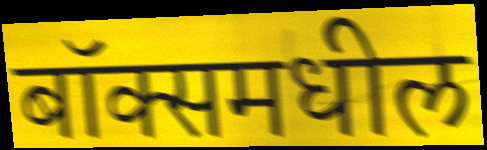
बॉक्समधील